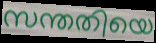
സന്തതിയെ